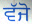
ਵੱਜੋ